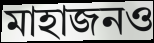
মাহাজনও